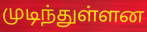
முடிந்துள்ளன